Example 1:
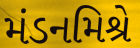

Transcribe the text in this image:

મંડનમિશ્રે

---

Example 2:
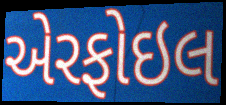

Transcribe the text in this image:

એરફોઇલ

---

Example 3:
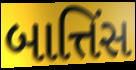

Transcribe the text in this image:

બાત્તિંસ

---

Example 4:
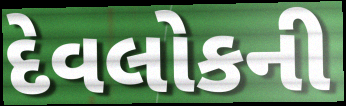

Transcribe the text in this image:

દેવલોકની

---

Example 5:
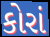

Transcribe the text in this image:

કોરાં